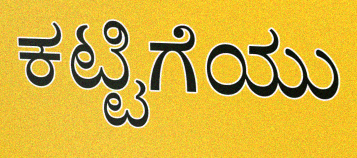
ಕಟ್ಟಿಗೆಯು